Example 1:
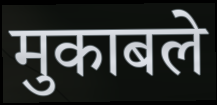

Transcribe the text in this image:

मुकाबले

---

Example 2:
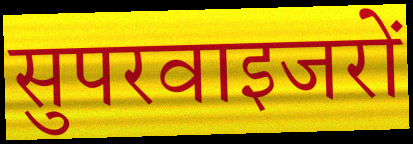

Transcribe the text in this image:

सुपरवाइजरों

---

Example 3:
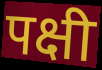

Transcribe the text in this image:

पक्षी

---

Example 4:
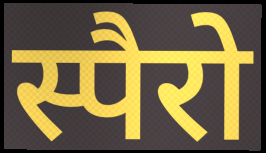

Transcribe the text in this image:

स्पैरो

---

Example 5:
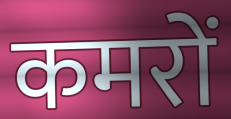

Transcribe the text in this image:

कमरों